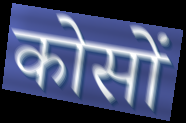
कोसों